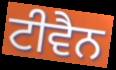
ਟੀਵੈਨ